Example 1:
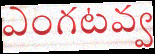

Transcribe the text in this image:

ఎంగటవ్వ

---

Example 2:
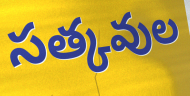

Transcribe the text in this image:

సత్కవుల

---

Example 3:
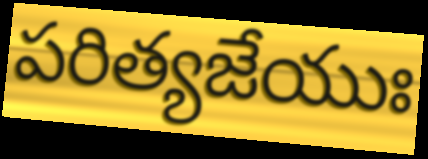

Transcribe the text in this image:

పరిత్యజేయుః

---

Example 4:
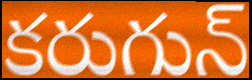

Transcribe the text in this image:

కరుగున్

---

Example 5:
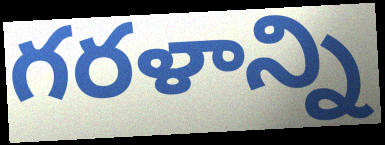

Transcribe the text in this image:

గరళాన్ని